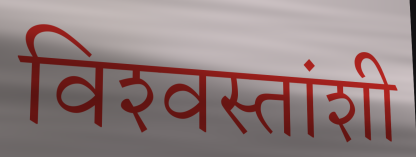
विश्वस्तांशी